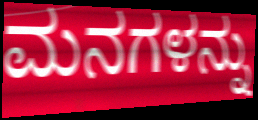
ಮನಗಳನ್ನು